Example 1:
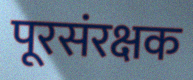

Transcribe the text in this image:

पूरसंरक्षक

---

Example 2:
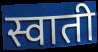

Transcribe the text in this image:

स्वाती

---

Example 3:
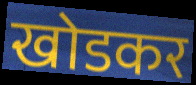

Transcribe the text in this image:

खोडकर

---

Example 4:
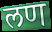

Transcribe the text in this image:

लण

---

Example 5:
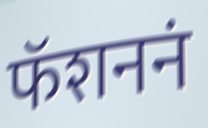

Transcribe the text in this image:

फॅशननं